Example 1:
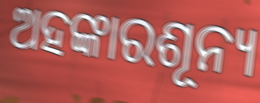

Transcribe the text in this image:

ଅହଙ୍କାରଶୂନ୍ୟ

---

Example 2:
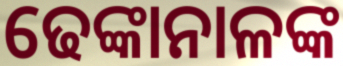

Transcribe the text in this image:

ଢେଙ୍କାନାଳଙ୍କ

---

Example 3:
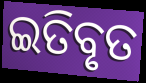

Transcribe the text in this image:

ଇତିବୃତ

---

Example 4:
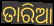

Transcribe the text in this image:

ତାରିଆ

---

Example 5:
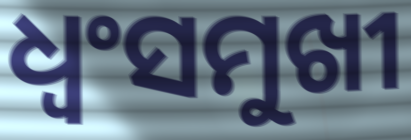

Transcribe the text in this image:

ଧ୍ୱଂସମୁଖୀ